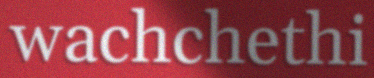
wachchethi